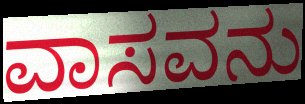
ವಾಸವನು